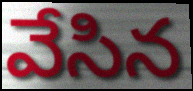
వేసిన